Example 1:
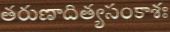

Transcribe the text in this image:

తరుణాదిత్యసంకాశః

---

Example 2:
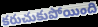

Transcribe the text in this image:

కరుచుకుపోయింది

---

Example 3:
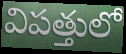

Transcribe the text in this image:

విపత్తులో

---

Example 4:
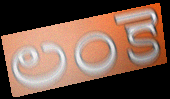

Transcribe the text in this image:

లంకె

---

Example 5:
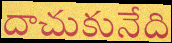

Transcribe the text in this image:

దాచుకునేది